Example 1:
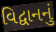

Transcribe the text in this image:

વિદ્વાનનું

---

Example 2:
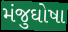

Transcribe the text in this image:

મંજુઘોષા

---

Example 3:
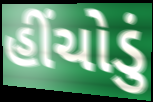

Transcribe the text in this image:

હીંચોડું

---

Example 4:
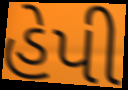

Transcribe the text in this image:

હેપી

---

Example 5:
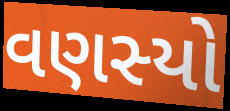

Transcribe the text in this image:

વણસ્યો